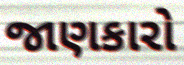
જાણકારો